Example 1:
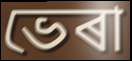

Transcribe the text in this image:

ভেৰা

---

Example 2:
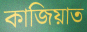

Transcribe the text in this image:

কাজিয়াত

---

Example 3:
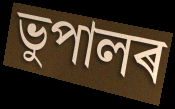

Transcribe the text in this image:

ভুপালৰ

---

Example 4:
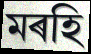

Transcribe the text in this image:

মৰহি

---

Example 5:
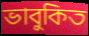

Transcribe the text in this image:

ভাবুকিত